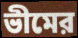
ভীমের